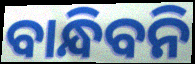
ବାନ୍ଧିବନି